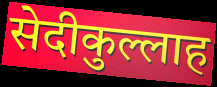
सेदीकुल्लाह